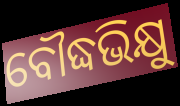
ବୌଦ୍ଧଭିକ୍ଷୁ